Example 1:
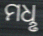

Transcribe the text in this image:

ମଧୢ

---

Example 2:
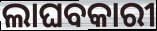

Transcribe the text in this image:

ଲାଘବକାରୀ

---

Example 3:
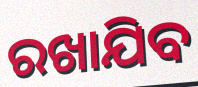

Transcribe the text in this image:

ରଖାଯିବ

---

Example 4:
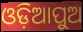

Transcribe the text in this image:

ଓଡ଼ିଆପୁଅ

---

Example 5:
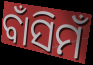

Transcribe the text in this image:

ବାଁସିମଁ